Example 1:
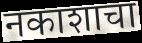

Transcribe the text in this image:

नकाशाचा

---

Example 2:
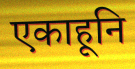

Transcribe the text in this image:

एकाहूनि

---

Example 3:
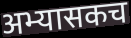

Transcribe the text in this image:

अभ्यासकच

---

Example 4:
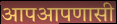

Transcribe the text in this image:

आपआपणासी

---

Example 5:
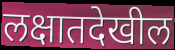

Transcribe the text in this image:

लक्षातदेखील